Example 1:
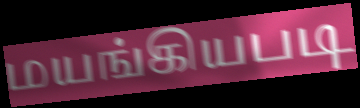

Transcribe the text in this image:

மயங்கியபடி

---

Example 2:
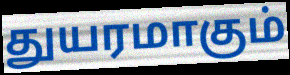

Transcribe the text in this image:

துயரமாகும்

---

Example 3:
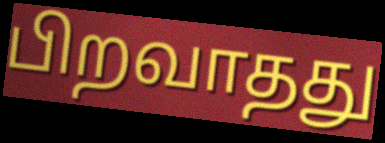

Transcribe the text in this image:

பிறவாதது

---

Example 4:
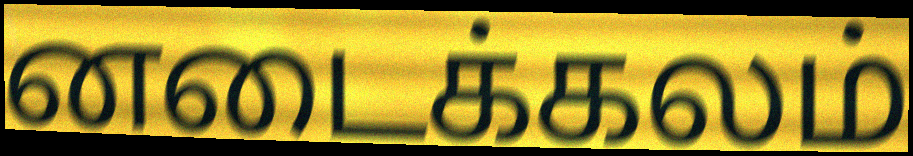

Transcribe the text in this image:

னடைக்கலம்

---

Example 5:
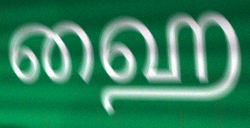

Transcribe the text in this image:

ஹை